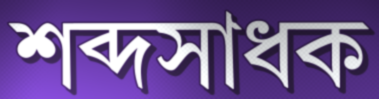
শব্দসাধক